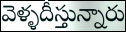
వెళ్ళదీస్తున్నారు